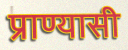
प्राण्यासी